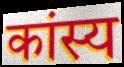
कांस्‍य